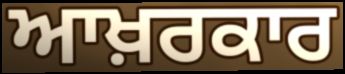
ਆਖ਼ਰਕਾਰ